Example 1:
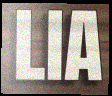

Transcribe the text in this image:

LIA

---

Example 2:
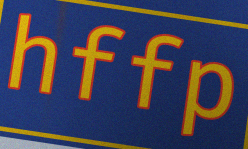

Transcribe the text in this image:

hffp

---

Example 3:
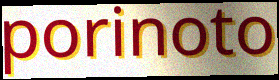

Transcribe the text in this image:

porinoto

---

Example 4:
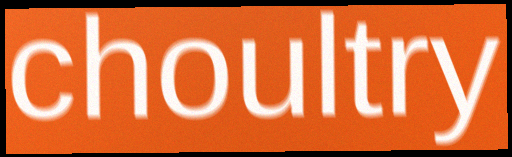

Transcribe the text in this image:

choultry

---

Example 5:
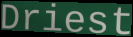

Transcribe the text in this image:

Driest